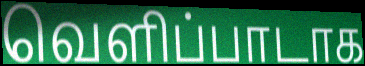
வெளிப்பாடாக